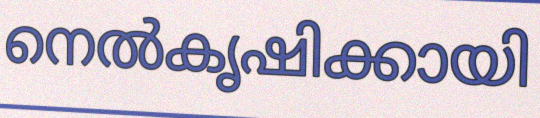
നെൽകൃഷിക്കായി